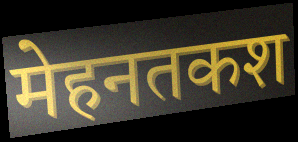
मेहनतकश